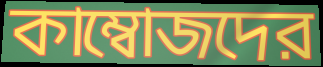
কাম্বোজদের